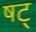
षट्